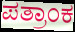
ಪತ್ರಾಂಕ